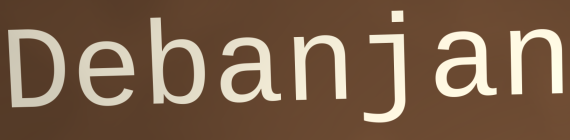
Debanjan